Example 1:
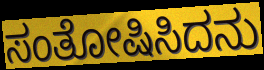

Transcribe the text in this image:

ಸಂತೋಷಿಸಿದನು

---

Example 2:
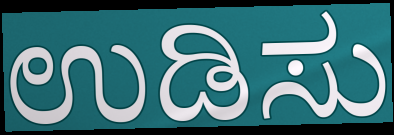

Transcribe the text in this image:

ಉಡಿಸು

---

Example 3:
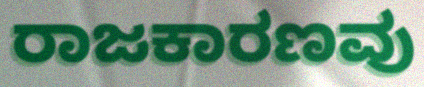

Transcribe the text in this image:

ರಾಜಕಾರಣವು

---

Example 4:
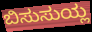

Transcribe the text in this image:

ಬಿಸುಸುಯ್ಲ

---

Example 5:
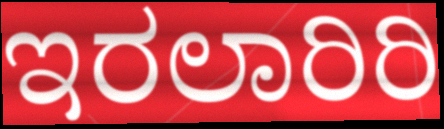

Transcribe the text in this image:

ಇರಲಾರಿರಿ